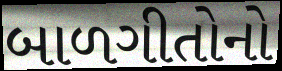
બાળગીતોનો